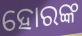
ହୋରଙ୍କ